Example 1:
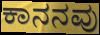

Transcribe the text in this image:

ಕಾನನವು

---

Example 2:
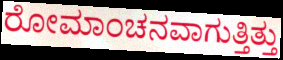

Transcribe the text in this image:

ರೋಮಾಂಚನವಾಗುತ್ತಿತ್ತು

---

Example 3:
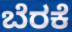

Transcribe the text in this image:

ಬೆರಕೆ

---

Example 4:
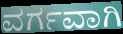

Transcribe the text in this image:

ವರ್ಗವಾಗಿ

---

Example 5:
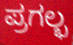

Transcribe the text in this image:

ಪ್ರಗಲ್ಭ